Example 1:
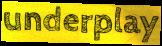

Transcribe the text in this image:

underplay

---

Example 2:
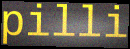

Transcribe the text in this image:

pilli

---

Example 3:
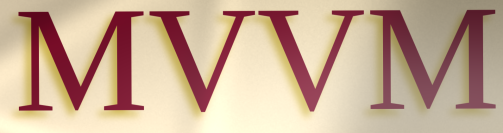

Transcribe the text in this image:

MVVM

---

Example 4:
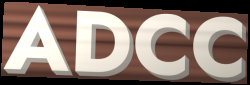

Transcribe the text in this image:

ADCC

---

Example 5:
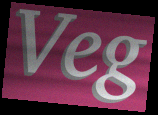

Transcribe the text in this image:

Veg